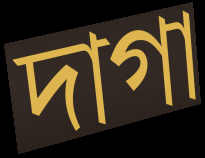
দাগা